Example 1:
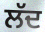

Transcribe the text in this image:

ਲੱਦ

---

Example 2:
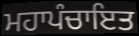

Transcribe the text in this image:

ਮਹਾਪੰਚਾਇਤ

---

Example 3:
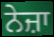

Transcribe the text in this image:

ਨੇਜ਼ਾ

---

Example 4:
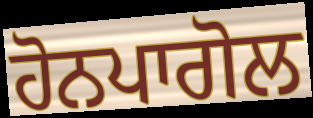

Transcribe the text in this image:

ਹੋਨਪਾਗੋਲ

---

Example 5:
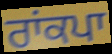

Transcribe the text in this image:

ਰਾਂਕਪਾ